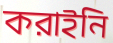
করাইনি